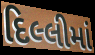
દિલ્લીમાં